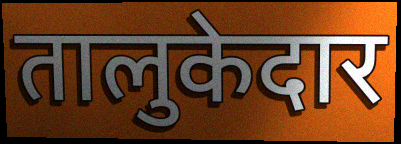
तालुकेदार